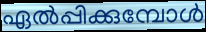
ഏൽപ്പിക്കുമ്പോൾ